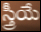
స్త్రీయే